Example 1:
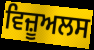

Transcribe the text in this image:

ਵਿਜ਼ੂਅਲਸ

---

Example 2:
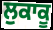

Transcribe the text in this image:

ਲੁਕਾਕੂ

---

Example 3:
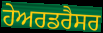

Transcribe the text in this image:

ਹੇਅਰਡਰੈਸਰ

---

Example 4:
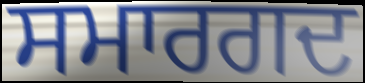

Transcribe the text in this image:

ਸਮਾਰਗਦ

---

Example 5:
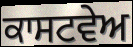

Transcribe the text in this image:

ਕਾਸਟਵੇਅ